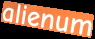
alienum